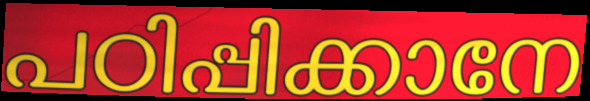
പഠിപ്പിക്കാനേ